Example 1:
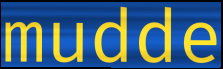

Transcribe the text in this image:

mudde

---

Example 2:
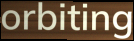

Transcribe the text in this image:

orbiting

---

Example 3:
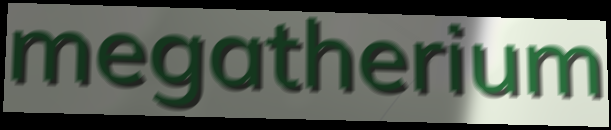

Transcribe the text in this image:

megatherium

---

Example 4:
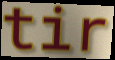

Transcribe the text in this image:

tir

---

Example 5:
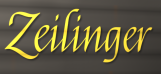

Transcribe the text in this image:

Zeilinger